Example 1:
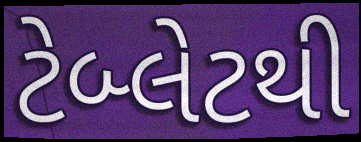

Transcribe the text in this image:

ટેબ્લેટથી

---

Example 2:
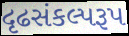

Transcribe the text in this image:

દૃઢસંકલ્પરૂપ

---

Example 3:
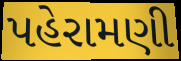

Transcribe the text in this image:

પહેરામણી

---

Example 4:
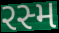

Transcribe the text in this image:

રસ્મ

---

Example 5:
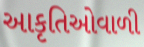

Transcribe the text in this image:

આકૃતિઓવાળી